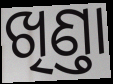
ଖିଣ୍ତା